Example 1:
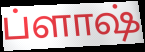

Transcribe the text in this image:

ப்ளாஷ்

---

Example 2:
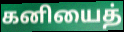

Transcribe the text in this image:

கனியைத்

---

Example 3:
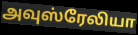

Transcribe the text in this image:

அவுஸ்ரேலியா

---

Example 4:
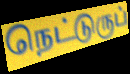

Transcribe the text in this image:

நெட்டுருப்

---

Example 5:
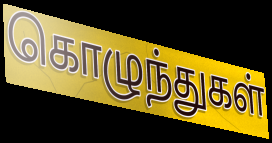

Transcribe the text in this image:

கொழுந்துகள்